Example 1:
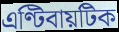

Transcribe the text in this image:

এণ্টিবায়টিক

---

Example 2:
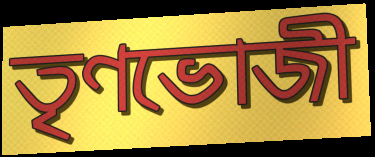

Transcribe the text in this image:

তৃণভোজী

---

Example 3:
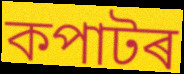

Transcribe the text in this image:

কপাটৰ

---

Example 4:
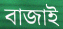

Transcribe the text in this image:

বাজাই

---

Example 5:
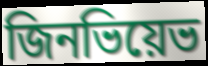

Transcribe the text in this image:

জিনভিয়েভ